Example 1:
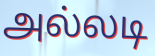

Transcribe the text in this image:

அல்லடி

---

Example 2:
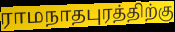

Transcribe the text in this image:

ராமநாதபுரத்திற்கு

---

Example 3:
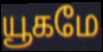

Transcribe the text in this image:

யூகமே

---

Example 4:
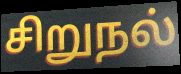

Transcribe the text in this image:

சிறுநல்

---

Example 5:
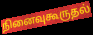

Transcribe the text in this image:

நினைவுகூருதல்